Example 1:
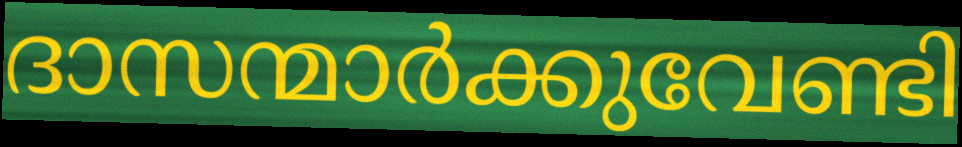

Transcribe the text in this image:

ദാസന്മാർക്കുവേണ്ടി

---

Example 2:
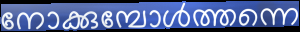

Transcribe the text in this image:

നോക്കുമ്പോൾത്തന്നെ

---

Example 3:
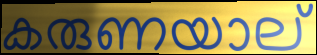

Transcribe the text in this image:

കരുണയാല്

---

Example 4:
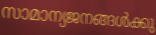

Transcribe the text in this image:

സാമാന്യജനങ്ങൾക്കു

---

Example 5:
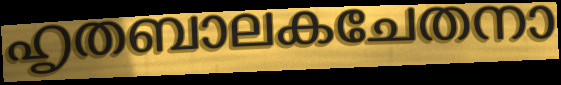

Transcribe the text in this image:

ഹൃതബാലകചേതനാ